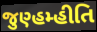
જુણ્હમ્હીતિ